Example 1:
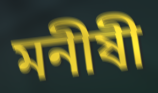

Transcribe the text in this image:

মনীষী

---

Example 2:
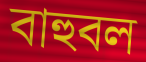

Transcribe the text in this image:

বাহুবল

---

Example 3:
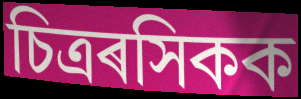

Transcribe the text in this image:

চিত্ৰৰসিকক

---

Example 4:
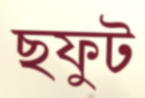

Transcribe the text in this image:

ছফুট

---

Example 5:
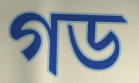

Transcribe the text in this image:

গড